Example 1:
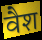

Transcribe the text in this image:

वैश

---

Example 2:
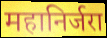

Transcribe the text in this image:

महानिर्जरा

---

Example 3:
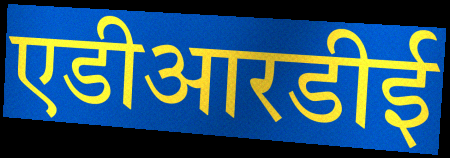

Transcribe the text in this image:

एडीआरडीई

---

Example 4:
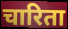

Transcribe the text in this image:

चारिता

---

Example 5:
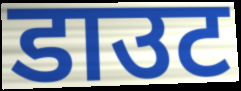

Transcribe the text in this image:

डाउट